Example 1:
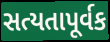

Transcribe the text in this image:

સત્યતાપૂર્વક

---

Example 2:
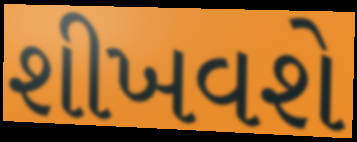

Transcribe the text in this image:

શીખવશે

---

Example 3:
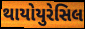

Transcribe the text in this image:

થાયોયુરેસિલ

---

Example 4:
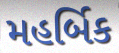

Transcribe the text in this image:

મહર્બિક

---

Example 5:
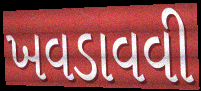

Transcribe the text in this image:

ખવડાવવી